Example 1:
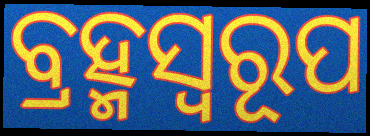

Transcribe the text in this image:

ବ୍ରହ୍ମସ୍ୱରୂପ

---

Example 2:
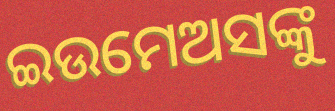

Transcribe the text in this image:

ଇଉମେଅସଙ୍କୁ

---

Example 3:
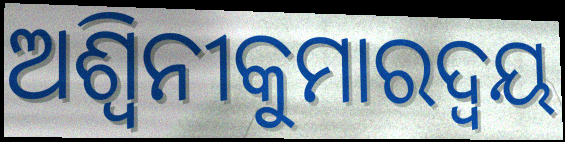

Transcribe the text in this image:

ଅଶ୍ୱିନୀକୁମାରଦ୍ୱୟ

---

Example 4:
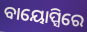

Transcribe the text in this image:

ବାୟୋପ୍ସିରେ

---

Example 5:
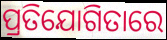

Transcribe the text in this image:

ପ୍ରତିଯୋଗିତାରେ